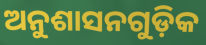
ଅନୁଶାସନଗୁଡ଼ିକ